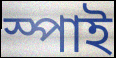
স্পাই